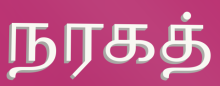
நரகத்